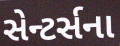
સેન્ટર્સના